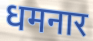
धमनार